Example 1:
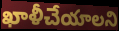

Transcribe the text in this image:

ఖాళీచేయాలని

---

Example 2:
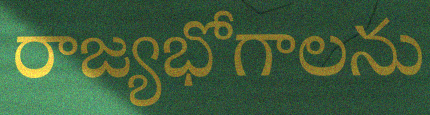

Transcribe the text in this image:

రాజ్యభోగాలను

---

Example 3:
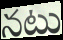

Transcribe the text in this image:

నటు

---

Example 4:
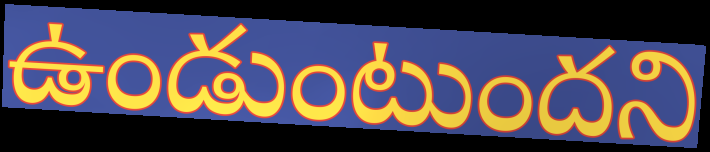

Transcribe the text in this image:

ఉండుంటుందని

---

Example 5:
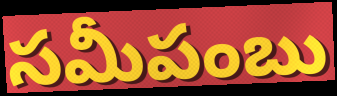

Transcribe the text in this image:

సమీపంబు